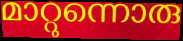
മാറ്റുന്നൊരു